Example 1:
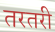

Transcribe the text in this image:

तरतरी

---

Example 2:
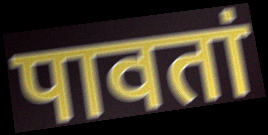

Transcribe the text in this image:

पावतां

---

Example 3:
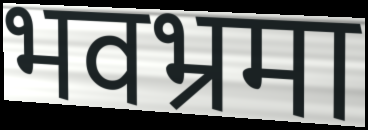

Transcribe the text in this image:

भवभ्रमा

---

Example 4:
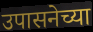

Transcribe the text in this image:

उपासनेच्या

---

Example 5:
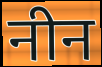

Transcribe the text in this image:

नीन